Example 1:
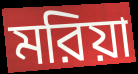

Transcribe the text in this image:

মরিয়া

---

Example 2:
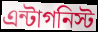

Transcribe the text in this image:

এন্টাগনিস্ট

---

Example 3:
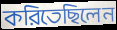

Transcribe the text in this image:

করিতেছিলেন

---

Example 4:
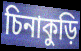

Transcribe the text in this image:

চিনাকুড়ি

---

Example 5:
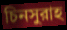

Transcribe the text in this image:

চিনসুরাহ